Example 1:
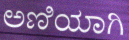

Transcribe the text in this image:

ಅಣಿಯಾಗಿ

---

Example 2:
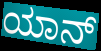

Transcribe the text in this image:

ಯಾನ್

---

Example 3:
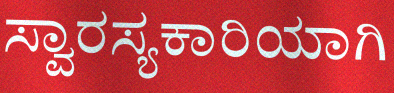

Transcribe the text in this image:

ಸ್ವಾರಸ್ಯಕಾರಿಯಾಗಿ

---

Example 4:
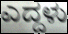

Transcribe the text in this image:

ಎದ್ದಳು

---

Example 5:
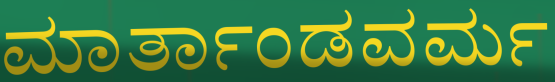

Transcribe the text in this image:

ಮಾರ್ತಾಂಡವರ್ಮ